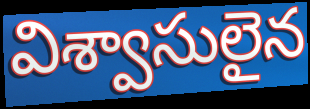
విశ్వాసులైన